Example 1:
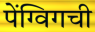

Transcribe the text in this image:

पेंग्विगची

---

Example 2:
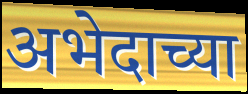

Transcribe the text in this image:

अभेदाच्या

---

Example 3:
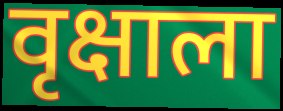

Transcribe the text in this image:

वृक्षाला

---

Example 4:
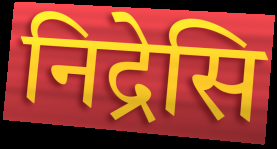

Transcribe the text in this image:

निद्रेसि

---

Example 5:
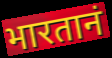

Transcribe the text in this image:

भारतानं